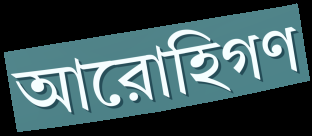
আরোহিগণ